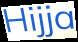
Hijja